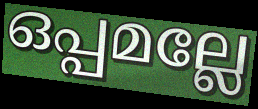
ഒപ്പമല്ലേ